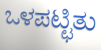
ಒಳಪಟ್ಟಿತು